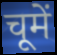
चूमें